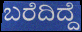
ಬರೆದಿದ್ದೆ